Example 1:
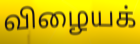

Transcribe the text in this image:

விழையக்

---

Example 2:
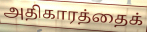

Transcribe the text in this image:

அதிகாரத்தைக்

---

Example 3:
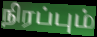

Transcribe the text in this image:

நிரப்பும்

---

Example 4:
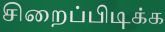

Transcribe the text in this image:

சிறைப்பிடிக்க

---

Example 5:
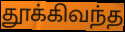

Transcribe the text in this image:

தூக்கிவந்த